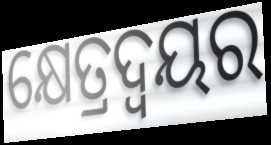
କ୍ଷେତ୍ରଦ୍ୱୟର